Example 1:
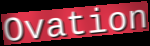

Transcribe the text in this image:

Ovation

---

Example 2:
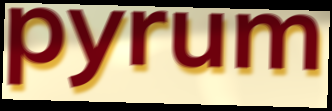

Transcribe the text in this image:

pyrum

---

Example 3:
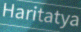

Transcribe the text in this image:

Haritatya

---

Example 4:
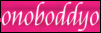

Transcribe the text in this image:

onoboddyo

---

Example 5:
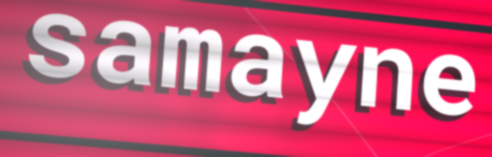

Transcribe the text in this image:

samayne